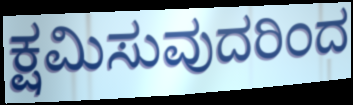
ಕ್ಷಮಿಸುವುದರಿಂದ